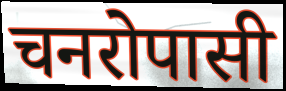
चनरोपासी